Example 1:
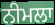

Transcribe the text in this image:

ਨੀਮਲਾ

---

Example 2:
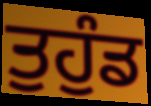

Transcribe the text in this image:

ਤੁਹੁੰਡ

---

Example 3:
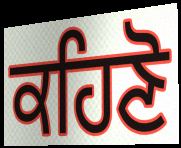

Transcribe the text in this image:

ਕਹਿਣੋ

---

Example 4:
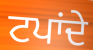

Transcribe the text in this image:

ਟਪਾਂਦੇ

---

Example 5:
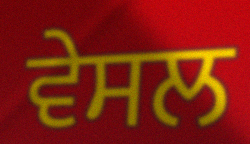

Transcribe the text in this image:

ਵੇਸਲ